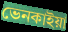
ভেনকাইয়া